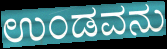
ಉಂಡವನು